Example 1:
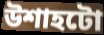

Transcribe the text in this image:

উশাহটো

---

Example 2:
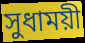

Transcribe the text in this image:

সুধাময়ী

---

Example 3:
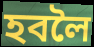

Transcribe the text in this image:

হবলৈ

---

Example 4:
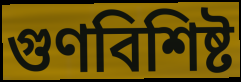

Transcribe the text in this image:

গুণবিশিষ্ট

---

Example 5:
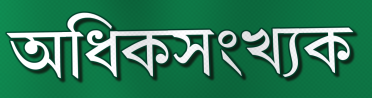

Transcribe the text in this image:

অধিকসংখ্যক